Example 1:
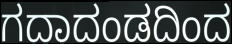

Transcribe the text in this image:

ಗದಾದಂಡದಿಂದ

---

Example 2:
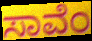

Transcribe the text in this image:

ಸಾವೆಂ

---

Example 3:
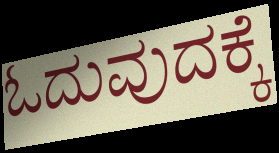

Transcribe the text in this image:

ಓದುವುದಕ್ಕೆ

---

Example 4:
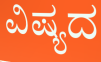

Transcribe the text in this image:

ವಿಷ್ಯದ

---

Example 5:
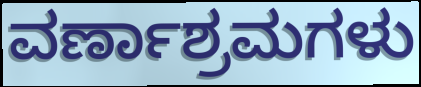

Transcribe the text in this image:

ವರ್ಣಾಶ್ರಮಗಳು